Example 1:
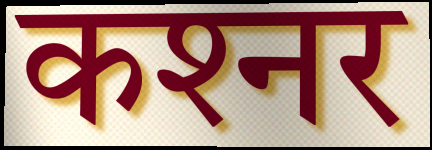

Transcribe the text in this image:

कश्‍नर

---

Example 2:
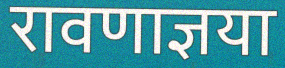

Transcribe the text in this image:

रावणाज्ञया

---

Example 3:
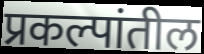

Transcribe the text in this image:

प्रकल्पांतील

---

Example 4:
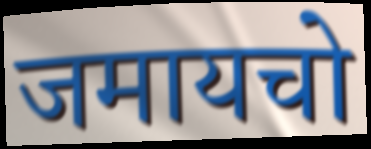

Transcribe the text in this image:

जमायचो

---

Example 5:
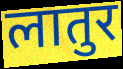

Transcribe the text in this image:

लातुर